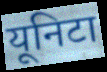
यूनिटा